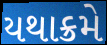
યથાક્રમે